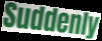
Suddenly